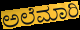
ಅಲೆಮಾರಿ